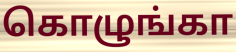
கொழுங்கா